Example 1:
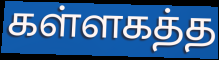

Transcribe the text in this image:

கள்ளகத்த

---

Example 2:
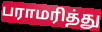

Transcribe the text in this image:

பராமரித்து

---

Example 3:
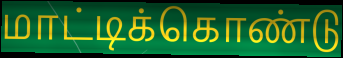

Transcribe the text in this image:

மாட்டிக்கொண்டு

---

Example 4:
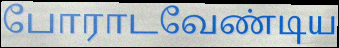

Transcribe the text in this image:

போராடவேண்டிய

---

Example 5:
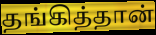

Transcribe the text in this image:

தங்கித்தான்